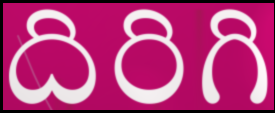
దిరిగి